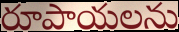
రూపాయలను